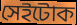
সেইটোক